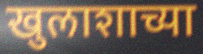
खुलाशाच्या